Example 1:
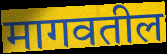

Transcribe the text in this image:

मागवतील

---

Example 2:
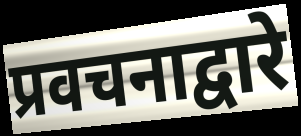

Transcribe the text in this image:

प्रवचनाद्वारे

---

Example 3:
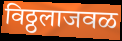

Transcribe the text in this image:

विठ्ठलाजवळ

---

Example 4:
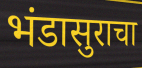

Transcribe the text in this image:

भंडासुराचा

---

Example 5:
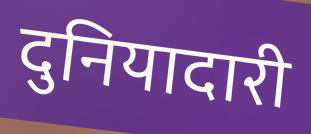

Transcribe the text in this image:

दुनियादारी